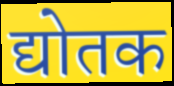
द्योतक